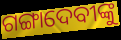
ଗଙ୍ଗାଦେବୀଙ୍କୁ